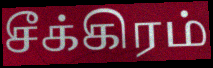
சீக்கிரம்